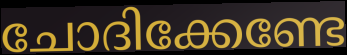
ചോദിക്കേണ്ടേ